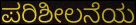
ಪರಿಶೀಲನೆಯ